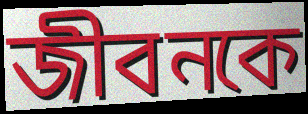
জীবনকে